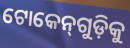
ଟୋକେନ୍‌ଗୁଡ଼ିକୁ